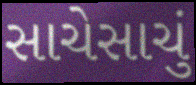
સાચેસાચું